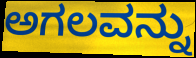
ಅಗಲವನ್ನು